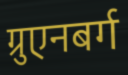
ग्रुएनबर्ग